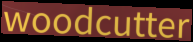
woodcutter